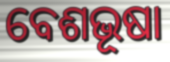
ବେଶଭୂଷା